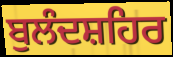
ਬੁਲੰਦਸ਼ਹਿਰ